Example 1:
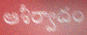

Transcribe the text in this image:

ఆశీర్వాదం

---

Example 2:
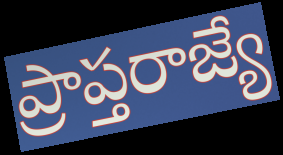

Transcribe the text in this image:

ప్రాప్తరాజ్యే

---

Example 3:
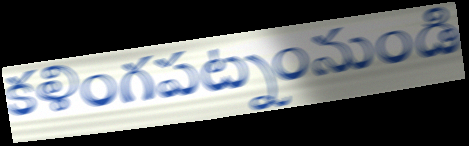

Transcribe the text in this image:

కళింగపట్నంనుండి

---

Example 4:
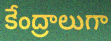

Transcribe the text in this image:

కేంద్రాలుగా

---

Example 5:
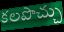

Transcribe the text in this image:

కలపొచ్చు